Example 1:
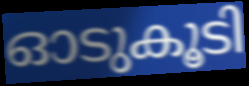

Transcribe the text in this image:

ഓടുകൂടി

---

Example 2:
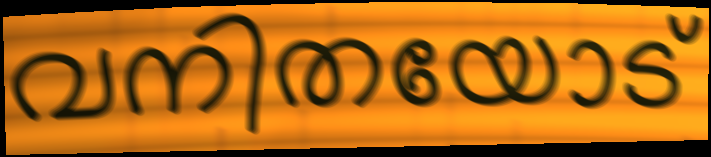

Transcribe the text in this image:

വനിതയോട്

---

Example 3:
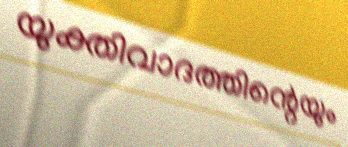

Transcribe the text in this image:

യുക്തിവാദത്തിന്റെയും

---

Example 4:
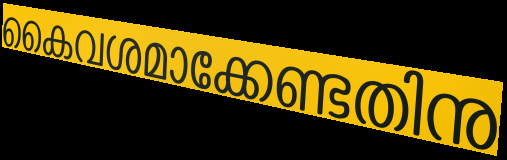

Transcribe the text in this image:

കൈവശമാക്കേണ്ടതിനു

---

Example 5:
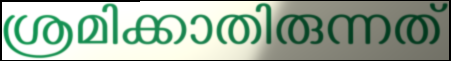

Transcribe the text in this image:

ശ്രമിക്കാതിരുന്നത്